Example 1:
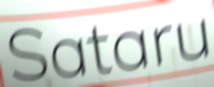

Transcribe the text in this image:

Sataru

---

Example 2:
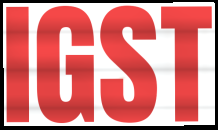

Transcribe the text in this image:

IGST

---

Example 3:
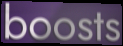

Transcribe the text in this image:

boosts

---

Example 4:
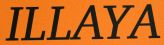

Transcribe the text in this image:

ILLAYA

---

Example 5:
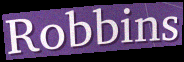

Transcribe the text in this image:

Robbins